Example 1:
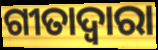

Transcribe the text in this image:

ଗୀତାଦ୍ଵାରା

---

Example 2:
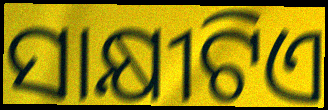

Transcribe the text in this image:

ସାକ୍ଷୀଟିଏ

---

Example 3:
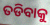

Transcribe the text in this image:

ତଡିବାକୁ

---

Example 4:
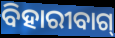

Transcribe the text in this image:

ବିହାରୀବାଗ୍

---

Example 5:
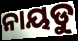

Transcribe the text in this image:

ନାୟଡୁ